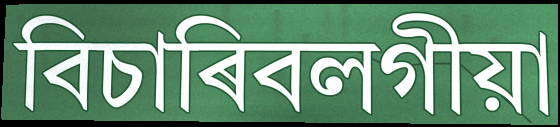
বিচাৰিবলগীয়া